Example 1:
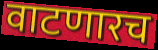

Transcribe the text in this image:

वाटणारच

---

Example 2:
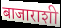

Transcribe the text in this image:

बाजाराशी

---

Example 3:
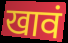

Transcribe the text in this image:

खावं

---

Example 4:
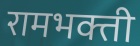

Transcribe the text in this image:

रामभक्ती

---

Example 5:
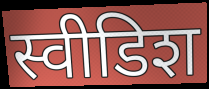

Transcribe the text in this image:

स्वीडिश